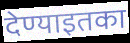
देण्याइतका